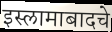
इस्लामाबादचे